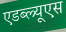
एडब्ल्यूएस